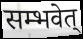
सम्भवेत्